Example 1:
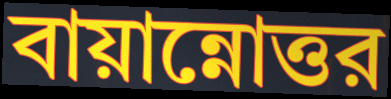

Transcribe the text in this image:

বায়ান্নোত্তর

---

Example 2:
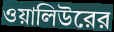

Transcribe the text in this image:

ওয়ালিউরের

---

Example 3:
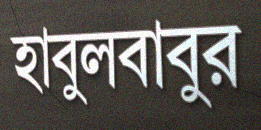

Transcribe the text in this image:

হাবুলবাবুর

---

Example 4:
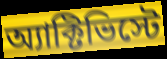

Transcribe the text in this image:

অ্যাক্টিভিস্টে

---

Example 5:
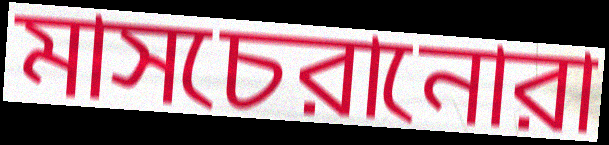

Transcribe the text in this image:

মাসচেরানোরা